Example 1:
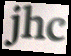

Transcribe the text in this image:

jhc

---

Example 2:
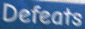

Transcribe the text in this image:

Defeats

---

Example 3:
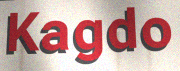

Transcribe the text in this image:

Kagdo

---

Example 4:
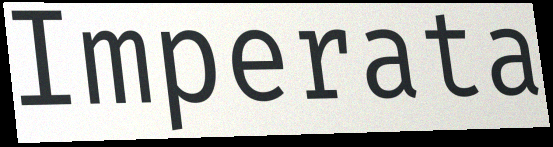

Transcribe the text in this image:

Imperata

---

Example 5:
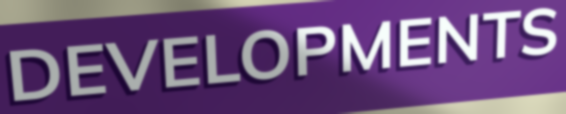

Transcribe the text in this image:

DEVELOPMENTS